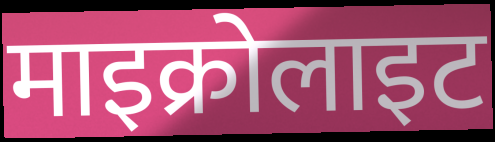
माइक्रोलाइट